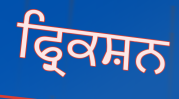
ਫ੍ਰਿਕਸ਼ਨ